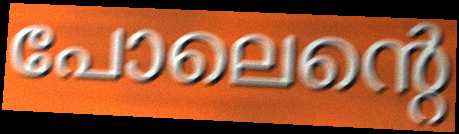
പോലെന്റെ